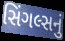
સિંગલ્સનું